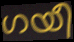
ഗയീ